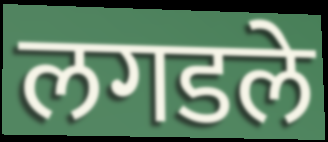
लगडले